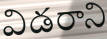
విడరాని